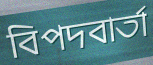
বিপদবার্তা